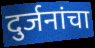
दुर्जनांचा